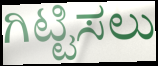
ಗಿಟ್ಟಿಸಲು